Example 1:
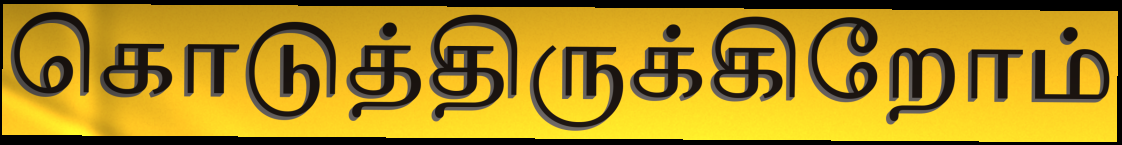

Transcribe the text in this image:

கொடுத்திருக்கிறோம்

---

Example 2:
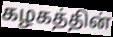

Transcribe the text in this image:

கழகத்தின்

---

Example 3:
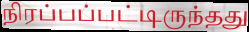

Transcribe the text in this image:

நிரப்பப்பட்டிருந்தது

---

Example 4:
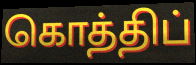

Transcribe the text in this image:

கொத்திப்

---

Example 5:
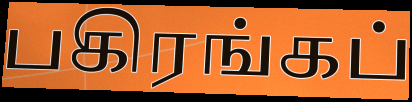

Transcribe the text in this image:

பகிரங்கப்